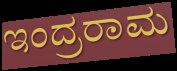
ಇಂದ್ರರಾಮ